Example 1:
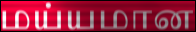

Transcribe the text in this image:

மய்யமான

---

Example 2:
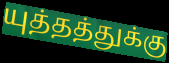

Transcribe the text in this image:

யுத்தத்துக்கு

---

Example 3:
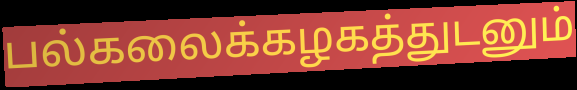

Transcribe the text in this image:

பல்கலைக்கழகத்துடனும்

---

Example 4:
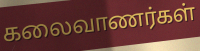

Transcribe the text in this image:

கலைவாணர்கள்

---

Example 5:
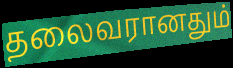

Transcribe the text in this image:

தலைவரானதும்